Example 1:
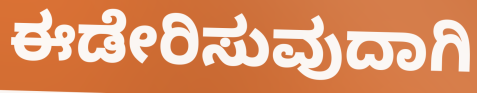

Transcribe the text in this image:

ಈಡೇರಿಸುವುದಾಗಿ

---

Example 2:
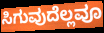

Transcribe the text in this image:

ಸಿಗುವುದೆಲ್ಲವೂ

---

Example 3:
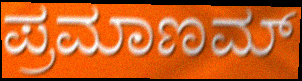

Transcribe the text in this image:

ಪ್ರಮಾಣಮ್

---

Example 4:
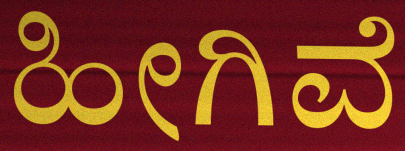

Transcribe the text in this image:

ಹೀಗಿವೆ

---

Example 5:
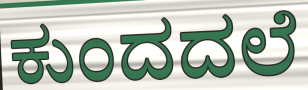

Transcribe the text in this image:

ಕುಂದದಲೆ